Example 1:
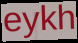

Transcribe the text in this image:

eykh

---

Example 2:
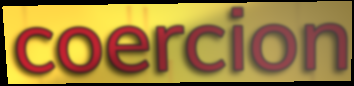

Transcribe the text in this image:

coercion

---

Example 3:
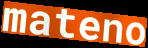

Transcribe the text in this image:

mateno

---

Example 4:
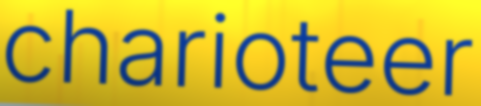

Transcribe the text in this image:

charioteer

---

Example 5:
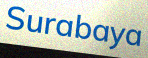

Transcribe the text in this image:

Surabaya